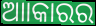
ଆାକାରର